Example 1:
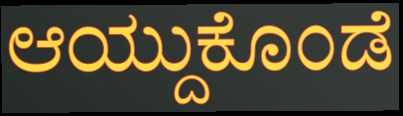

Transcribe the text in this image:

ಆಯ್ದುಕೊಂಡೆ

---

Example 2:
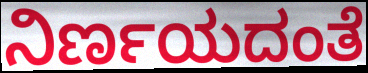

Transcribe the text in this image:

ನಿರ್ಣಯದಂತೆ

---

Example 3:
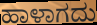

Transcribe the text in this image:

ಹಾಳಾಗದು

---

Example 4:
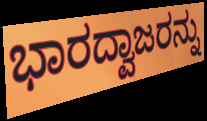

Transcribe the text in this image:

ಭಾರದ್ವಾಜರನ್ನು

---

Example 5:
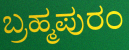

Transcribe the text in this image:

ಬ್ರಹ್ಮಪುರಂ